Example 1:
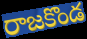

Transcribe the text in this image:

రాజకొండ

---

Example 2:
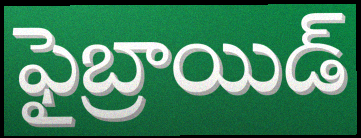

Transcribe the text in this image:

ఫైబ్రాయిడ్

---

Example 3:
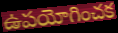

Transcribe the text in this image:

ఉపయోగించక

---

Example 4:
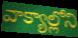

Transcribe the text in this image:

వాక్యాల్లోని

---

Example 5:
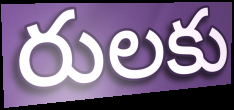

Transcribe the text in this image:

రులకు